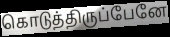
கொடுத்திருப்பேனே